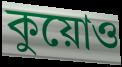
কুয়োও